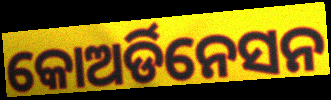
କୋଅର୍ଡିନେସନ